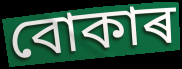
বোকাৰ